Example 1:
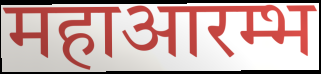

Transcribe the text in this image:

महाआरम्भ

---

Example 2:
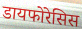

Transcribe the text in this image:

डायफोरेसिस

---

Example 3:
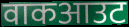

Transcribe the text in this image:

वाकआउट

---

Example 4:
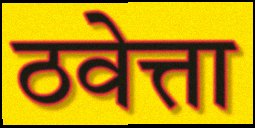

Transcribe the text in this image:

ठवेत्ता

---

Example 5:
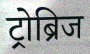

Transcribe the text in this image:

ट्रोब्रिज